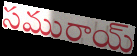
సమురాయ్